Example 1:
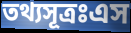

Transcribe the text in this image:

তথ্যসূত্রঃএস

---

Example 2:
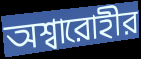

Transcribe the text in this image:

অশ্বারোহীর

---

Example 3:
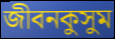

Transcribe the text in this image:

জীবনকুসুম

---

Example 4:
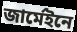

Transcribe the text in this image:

জার্মেইনে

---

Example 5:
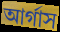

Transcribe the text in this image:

আর্গাস